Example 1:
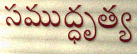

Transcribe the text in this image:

సముద్ధృత్య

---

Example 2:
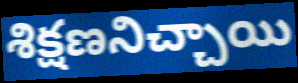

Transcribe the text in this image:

శిక్షణనిచ్చాయి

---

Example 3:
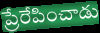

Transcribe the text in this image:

ప్రేరేపించాడు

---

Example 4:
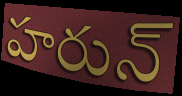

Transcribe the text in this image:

హరున్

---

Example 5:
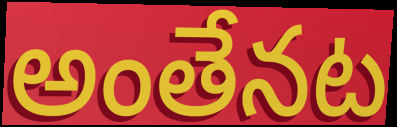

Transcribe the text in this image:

అంతేనట